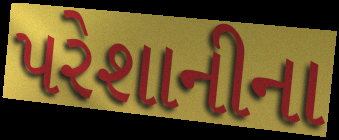
પરેશાનીના